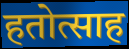
हतोत्साह